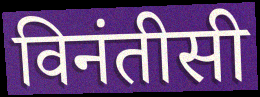
विनंतीसी